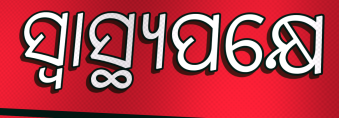
ସ୍ଵାସ୍ଥ୍ୟପକ୍ଷେ